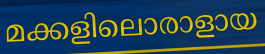
മക്കളിലൊരാളായ